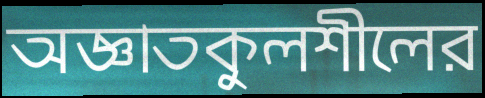
অজ্ঞাতকুলশীলের